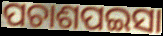
ପଚାଶପଇସା